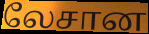
லேசான